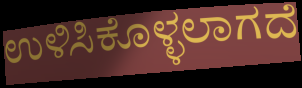
ಉಳಿಸಿಕೊಳ್ಳಲಾಗದೆ